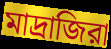
মাদ্রাজিরা